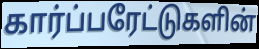
கார்ப்பரேட்டுகளின்